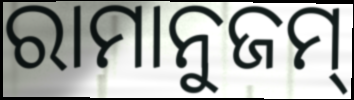
ରାମାନୁଜମ୍